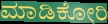
ಮಾಡಿಕೋರಿ